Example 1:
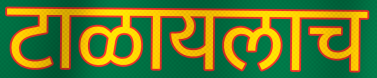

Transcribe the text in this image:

टाळायलाच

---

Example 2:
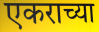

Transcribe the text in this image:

एकराच्या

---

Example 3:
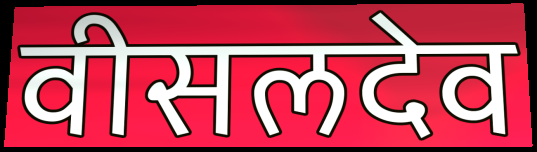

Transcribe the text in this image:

वीसलदेव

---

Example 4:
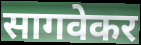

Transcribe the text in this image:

सागवेकर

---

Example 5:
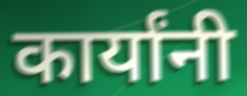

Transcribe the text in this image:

कार्यांनी